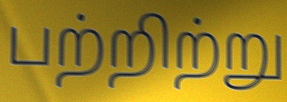
பற்றிற்று